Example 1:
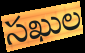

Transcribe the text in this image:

సఖుల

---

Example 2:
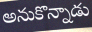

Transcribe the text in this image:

అనుకొన్నాడు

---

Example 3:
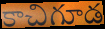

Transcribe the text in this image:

కాచిగూడ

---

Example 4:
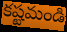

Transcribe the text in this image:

కష్టమండి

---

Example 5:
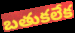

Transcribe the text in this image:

బతుకలేక